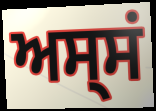
ਅਸ੍ਸਂ